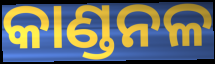
କାଣ୍ଡନଳ